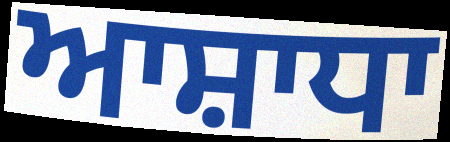
ਆਸ਼ਾਧਾ